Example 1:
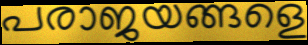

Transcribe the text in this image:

പരാജയങ്ങളെ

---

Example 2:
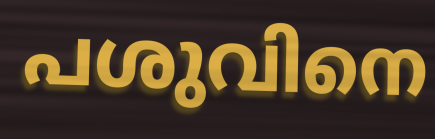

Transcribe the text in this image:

പശുവിനെ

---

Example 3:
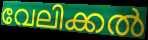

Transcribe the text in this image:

വേലിക്കൽ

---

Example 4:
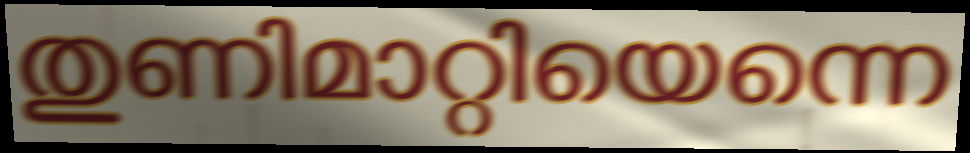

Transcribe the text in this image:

തുണിമാറ്റിയെന്നെ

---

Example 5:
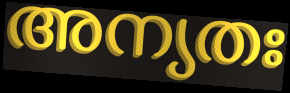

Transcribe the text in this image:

അന്യതഃ